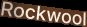
Rockwool